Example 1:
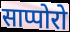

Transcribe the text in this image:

साप्पोरो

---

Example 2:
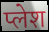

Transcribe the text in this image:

प्लेश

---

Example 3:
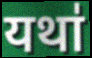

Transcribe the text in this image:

यथा॑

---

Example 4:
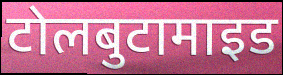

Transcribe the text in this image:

टोलबुटामाइड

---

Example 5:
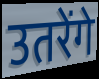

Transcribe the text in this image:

उतरेंगे